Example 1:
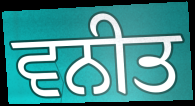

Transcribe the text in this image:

ਵਨੀਤ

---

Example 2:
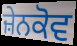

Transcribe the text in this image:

ਜ਼ੇਨਕੋਵ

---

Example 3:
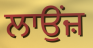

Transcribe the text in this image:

ਲਾਉਂਜ਼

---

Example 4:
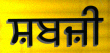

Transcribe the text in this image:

ਸ਼ਬਜ਼ੀ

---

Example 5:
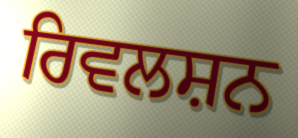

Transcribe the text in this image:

ਰਿਵਲਸ਼ਨ